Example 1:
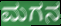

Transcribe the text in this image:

ಮಗನ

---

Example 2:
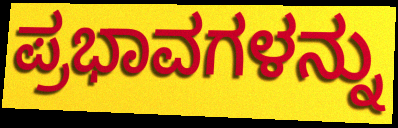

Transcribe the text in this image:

ಪ್ರಭಾವಗಳನ್ನು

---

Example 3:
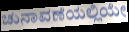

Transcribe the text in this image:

ಚುನಾವಣೆಯಲ್ಲಿಯೇ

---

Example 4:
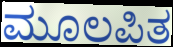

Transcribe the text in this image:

ಮೂಲಪಿತ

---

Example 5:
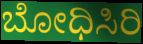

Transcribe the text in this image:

ಬೋಧಿಸಿರಿ